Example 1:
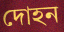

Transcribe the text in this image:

দোহন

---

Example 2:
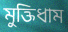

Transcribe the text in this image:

মুক্তিধাম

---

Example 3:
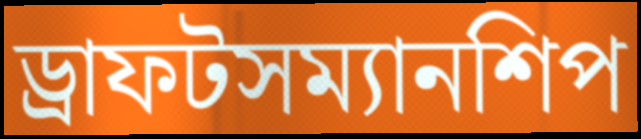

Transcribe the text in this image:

ড্রাফটসম্যানশিপ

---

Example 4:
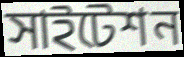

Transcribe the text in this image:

সাইটেশন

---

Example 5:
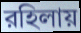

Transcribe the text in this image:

রহিলায়